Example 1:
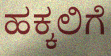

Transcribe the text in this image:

ಹಕ್ಕಲಿಗೆ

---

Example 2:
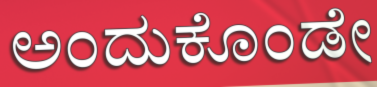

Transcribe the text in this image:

ಅಂದುಕೊಂಡೇ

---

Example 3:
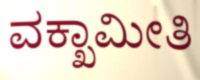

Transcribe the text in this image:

ವಕ್ಖಾಮೀತಿ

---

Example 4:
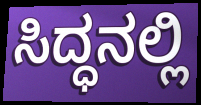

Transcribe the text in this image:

ಸಿದ್ಧನಲ್ಲಿ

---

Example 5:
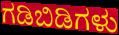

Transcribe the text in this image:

ಗಡಿಬಿಡಿಗಳು